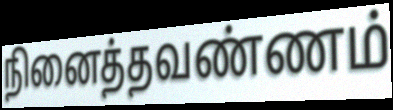
நினைத்தவண்ணம்